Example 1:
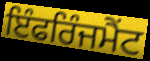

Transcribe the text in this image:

ਇੰਫਰਿੰਜਮੈਂਟ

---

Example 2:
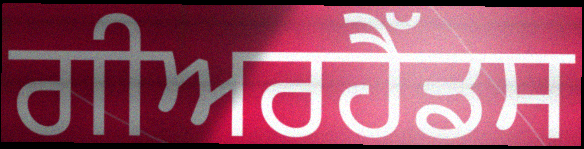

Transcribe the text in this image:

ਗੀਅਰਹੈੱਡਸ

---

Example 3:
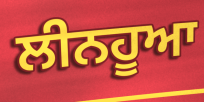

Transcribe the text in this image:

ਲੀਨਹੂਆ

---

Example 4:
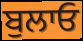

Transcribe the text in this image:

ਬੁਲਾਓ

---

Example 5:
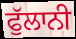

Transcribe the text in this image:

ਫੁੱਲਾਨੀ